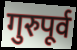
गुरुपूर्व